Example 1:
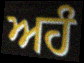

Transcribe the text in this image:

ਅਹੰ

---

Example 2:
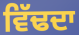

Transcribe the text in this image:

ਵਿੱਢਦਾ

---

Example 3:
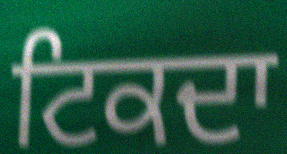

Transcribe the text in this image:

ਟਿਕਦਾ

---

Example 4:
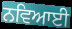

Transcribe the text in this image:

ਨਵਿਆਈ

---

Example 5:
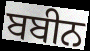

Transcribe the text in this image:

ਬਬੀਨ